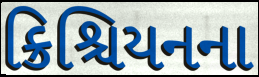
ક્રિશ્ચિયનના